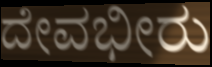
ದೇವಭೀರು